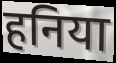
हनिया